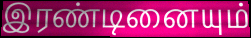
இரண்டினையும்